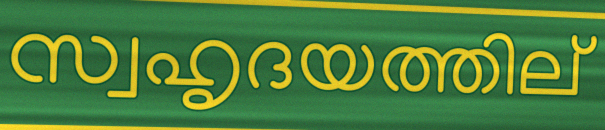
സ്വഹൃദയത്തില്